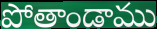
పోతాండాము